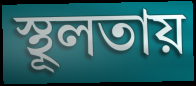
স্থূলতায়